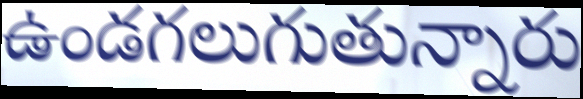
ఉండగలుగుతున్నారు